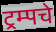
ट्रम्पचे